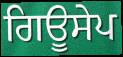
ਗਿਊਸੇਪ